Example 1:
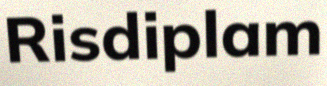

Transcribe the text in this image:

Risdiplam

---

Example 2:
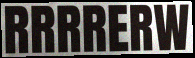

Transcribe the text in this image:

RRRRERW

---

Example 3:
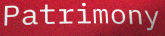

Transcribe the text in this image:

Patrimony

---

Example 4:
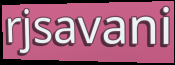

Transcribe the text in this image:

rjsavani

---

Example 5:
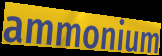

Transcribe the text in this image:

ammonium